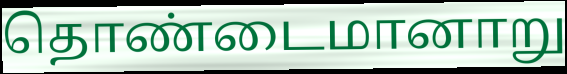
தொண்டைமானாறு